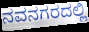
ನವನಗರದಲ್ಲಿ